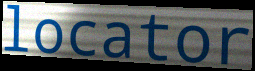
locator